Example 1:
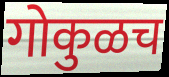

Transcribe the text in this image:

गोकुळच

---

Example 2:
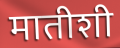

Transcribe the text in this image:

मातीशी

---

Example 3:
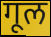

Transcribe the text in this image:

गूल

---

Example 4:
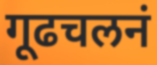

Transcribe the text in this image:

गूढचलनं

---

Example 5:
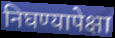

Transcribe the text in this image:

निघण्यापेक्षा